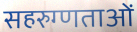
सहरुग्णताओं